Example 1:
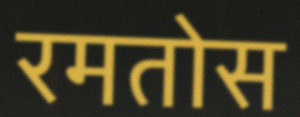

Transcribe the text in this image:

रमतोस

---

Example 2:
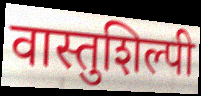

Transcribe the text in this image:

वास्तुशिल्पी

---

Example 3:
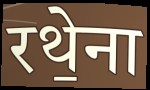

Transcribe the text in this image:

रथे॒ना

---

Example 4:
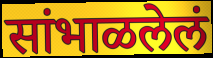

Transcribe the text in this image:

सांभाळलेलं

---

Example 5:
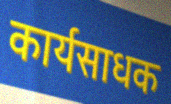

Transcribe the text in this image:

कार्यसाधक